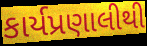
કાર્યપ્રણાલીથી